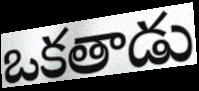
ఒకతాడు